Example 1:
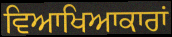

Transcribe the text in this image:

ਵਿਆਖਿਆਕਾਰਾਂ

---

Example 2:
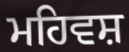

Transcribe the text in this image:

ਮਹਿਵਸ਼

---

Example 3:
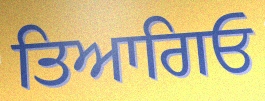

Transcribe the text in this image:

ਤਿਆਗਿਓ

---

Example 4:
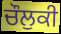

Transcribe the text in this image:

ਚੌਲੁਕੀ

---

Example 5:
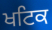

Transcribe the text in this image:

ਖਟਿਕ